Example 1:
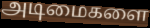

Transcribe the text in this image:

அடிமைகளை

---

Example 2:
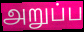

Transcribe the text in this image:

அறுப்ப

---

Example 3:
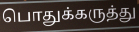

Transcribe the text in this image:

பொதுக்கருத்து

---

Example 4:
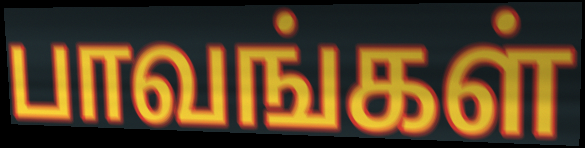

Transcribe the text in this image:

பாவங்கள்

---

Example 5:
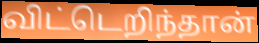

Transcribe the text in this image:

விட்டெறிந்தான்